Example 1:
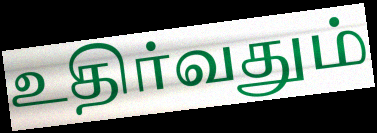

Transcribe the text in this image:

உதிர்வதும்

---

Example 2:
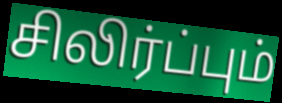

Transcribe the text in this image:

சிலிர்ப்பும்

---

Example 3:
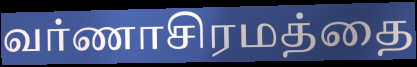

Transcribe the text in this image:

வர்ணாசிரமத்தை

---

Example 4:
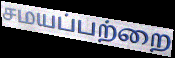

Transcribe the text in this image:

சமயப்பற்றை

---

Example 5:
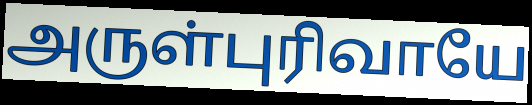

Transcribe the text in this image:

அருள்புரிவாயே